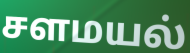
சளமயல்